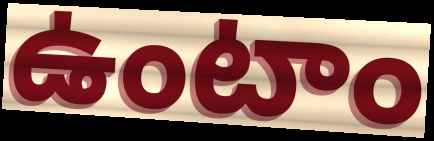
ఉంటాం